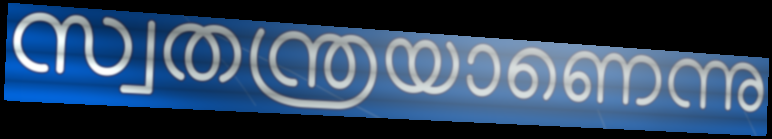
സ്വതന്ത്രയാണെന്നു